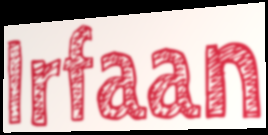
Irfaan